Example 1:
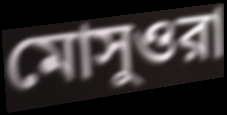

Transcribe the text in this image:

মোসুওরা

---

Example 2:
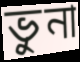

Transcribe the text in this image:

ভুনা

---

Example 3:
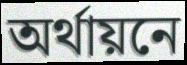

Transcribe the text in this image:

অর্থায়নে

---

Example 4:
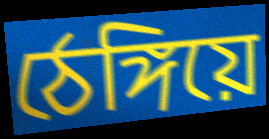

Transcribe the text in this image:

ঠেঙ্গিয়ে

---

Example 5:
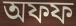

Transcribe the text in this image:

অফফ